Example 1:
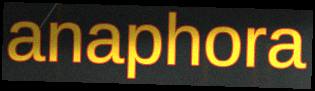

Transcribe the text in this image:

anaphora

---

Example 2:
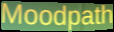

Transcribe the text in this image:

Moodpath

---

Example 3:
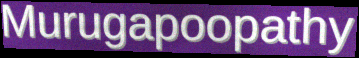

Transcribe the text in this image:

Murugapoopathy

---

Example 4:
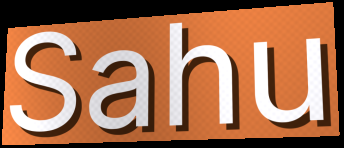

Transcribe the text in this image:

Sahu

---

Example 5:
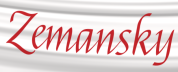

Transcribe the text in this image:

Zemansky